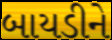
બાયડીને